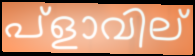
പ്ളാവില്